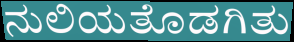
ನುಲಿಯತೊಡಗಿತು